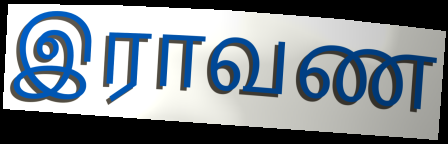
இராவண